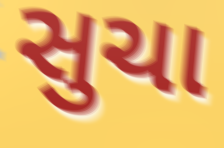
સુચા